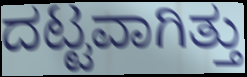
ದಟ್ಟವಾಗಿತ್ತು